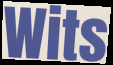
Wits